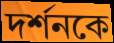
দর্শনকে